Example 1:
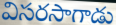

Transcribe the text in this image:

విసరసాగాడు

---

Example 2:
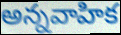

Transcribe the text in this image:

అన్నవాహిక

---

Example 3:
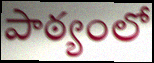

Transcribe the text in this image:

పాఠ్యంలో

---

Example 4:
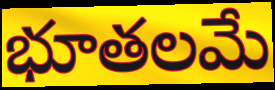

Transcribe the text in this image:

భూతలమే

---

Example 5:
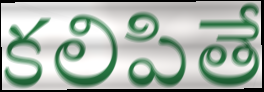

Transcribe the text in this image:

కలిపితే